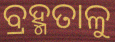
ବ୍ରହ୍ମତାଳୁ